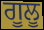
ਗੂਲੂ